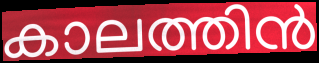
കാലത്തിൻ